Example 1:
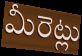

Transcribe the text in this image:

మీరెట్లు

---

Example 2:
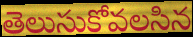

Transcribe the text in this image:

తెలుసుకోవలసిన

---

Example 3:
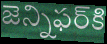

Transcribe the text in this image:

జెన్నిఫర్‌కి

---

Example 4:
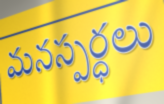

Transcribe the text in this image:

మనస్పర్ధలు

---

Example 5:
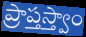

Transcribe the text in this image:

ప్రాప్తస్త్వాం